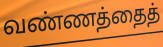
வண்ணத்தைத்